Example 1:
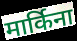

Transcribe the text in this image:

मार्किना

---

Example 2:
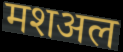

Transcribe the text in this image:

मशअल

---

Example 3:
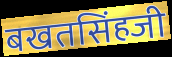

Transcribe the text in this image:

बखतसिंहजी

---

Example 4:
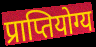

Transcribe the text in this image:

प्राप्तियोग्य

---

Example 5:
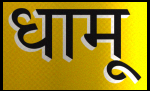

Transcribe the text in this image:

धामू